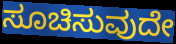
ಸೂಚಿಸುವುದೇ